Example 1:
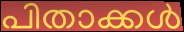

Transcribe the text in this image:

പിതാക്കൾ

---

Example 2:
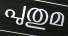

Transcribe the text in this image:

പുതുമ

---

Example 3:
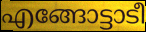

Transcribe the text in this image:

എങ്ങോട്ടാടീ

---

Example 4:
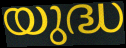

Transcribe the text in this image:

യുദ്ധ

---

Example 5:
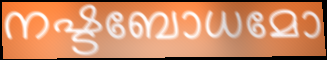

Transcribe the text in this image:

നഷ്ടബോധമോ